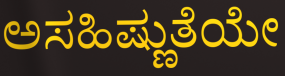
ಅಸಹಿಷ್ಣುತೆಯೇ